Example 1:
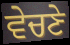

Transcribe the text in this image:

ਵੇਚਣੇ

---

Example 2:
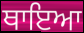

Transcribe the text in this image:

ਥਾਇਆ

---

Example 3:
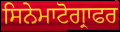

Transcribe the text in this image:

ਸਿਨੇਮਾਟੋਗ੍ਰਾਫਰ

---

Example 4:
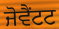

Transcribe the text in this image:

ਜੋਵੈਂਟਟ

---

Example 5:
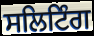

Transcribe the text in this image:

ਸਲਿਟਿੰਗ